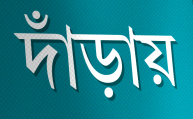
দাঁড়ায়